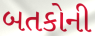
બતકોની